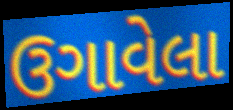
ઉગાવેલા